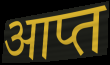
आप्त